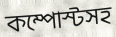
কম্পোস্টসহ